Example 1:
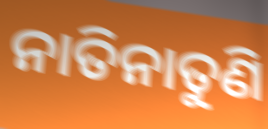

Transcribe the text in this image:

ନାତିନାତୁଣି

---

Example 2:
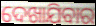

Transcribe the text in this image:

ଦେଖାଯିବାର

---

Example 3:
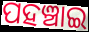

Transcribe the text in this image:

ପହଞ୍ଚାଇ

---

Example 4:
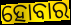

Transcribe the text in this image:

ହୋବାର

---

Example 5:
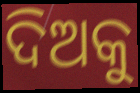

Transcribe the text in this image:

ଦିଅକୁ